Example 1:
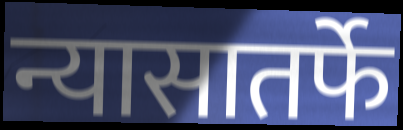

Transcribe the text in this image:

न्यासातर्फे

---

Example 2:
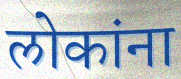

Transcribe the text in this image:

लोकांना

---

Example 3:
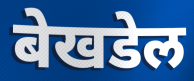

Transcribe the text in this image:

बेखडेल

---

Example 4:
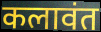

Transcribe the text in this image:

कलावंत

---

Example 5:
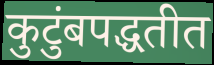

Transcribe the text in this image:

कुटुंबपद्धतीत